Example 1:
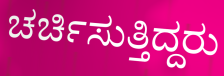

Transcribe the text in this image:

ಚರ್ಚಿಸುತ್ತಿದ್ದರು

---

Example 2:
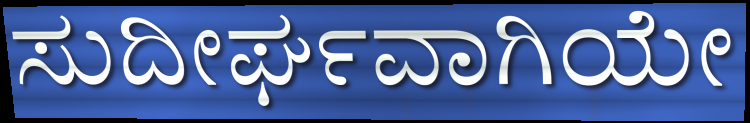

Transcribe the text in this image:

ಸುದೀರ್ಘವಾಗಿಯೇ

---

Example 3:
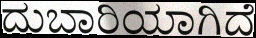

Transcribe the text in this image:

ದುಬಾರಿಯಾಗಿದೆ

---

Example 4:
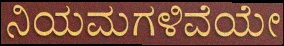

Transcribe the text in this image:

ನಿಯಮಗಳಿವೆಯೇ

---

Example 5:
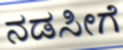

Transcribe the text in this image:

ನಡಸೀಗೆ